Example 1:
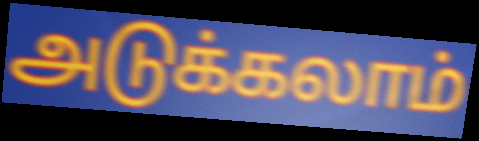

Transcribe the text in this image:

அடுக்கலாம்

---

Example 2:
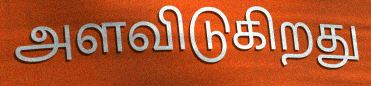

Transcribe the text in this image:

அளவிடுகிறது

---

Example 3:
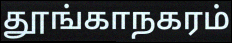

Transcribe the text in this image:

தூங்காநகரம்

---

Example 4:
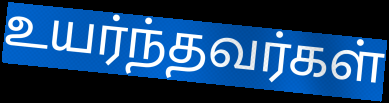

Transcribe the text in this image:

உயர்ந்தவர்கள்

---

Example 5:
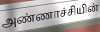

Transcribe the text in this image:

அண்ணாச்சியின்